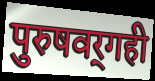
पुरुषवर्गही